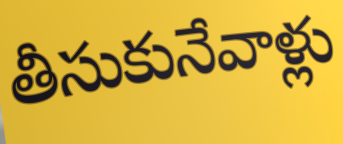
తీసుకునేవాళ్లు